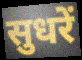
सुधरें